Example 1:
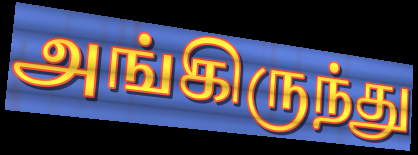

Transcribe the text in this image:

அங்கிருந்து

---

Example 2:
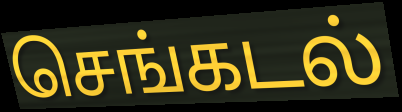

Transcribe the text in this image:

செங்கடல்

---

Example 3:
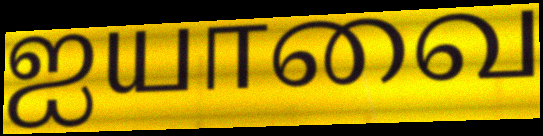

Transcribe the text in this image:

ஐயாவை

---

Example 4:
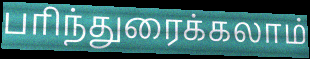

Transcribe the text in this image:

பரிந்துரைக்கலாம்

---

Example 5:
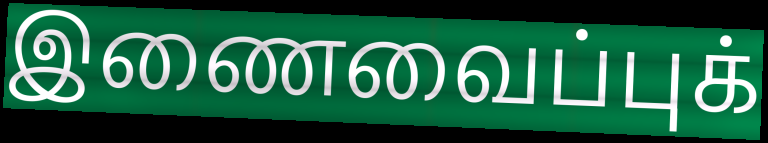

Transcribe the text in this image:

இணைவைப்புக்